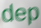
dep